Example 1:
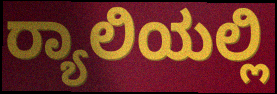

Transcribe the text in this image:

ರ‍್ಯಾಲಿಯಲ್ಲಿ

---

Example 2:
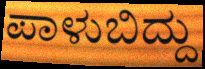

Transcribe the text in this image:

ಪಾಳುಬಿದ್ದು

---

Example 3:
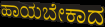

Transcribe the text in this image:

ಹಾಯಬೇಕಾದ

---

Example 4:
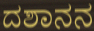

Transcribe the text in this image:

ದಶಾನನ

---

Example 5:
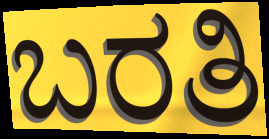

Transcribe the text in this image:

ಬರತಿ